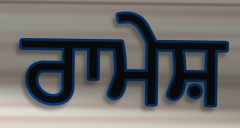
ਰਾਮੇਸ਼